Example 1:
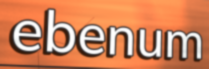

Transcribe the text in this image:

ebenum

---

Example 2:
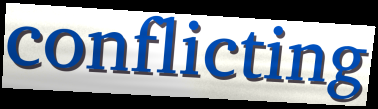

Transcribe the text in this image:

conflicting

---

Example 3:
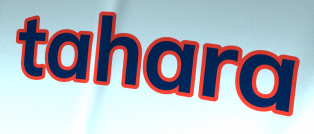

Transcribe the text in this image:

tahara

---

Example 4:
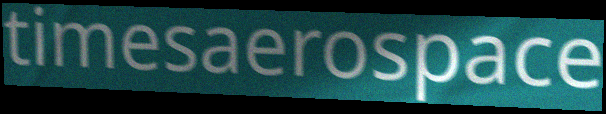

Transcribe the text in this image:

timesaerospace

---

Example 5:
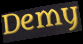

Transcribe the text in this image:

Demy